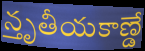
న్తృతీయకాణ్డే